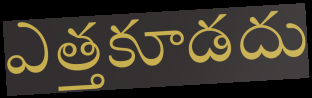
ఎత్తకూడదు